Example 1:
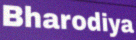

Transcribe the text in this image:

Bharodiya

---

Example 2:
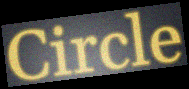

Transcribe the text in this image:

Circle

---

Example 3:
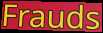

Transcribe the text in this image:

Frauds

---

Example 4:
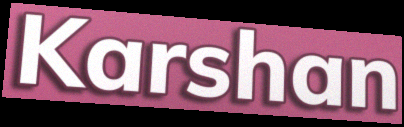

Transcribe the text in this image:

Karshan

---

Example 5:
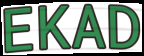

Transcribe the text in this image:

EKAD